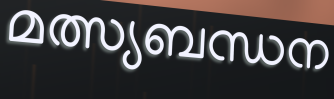
മത്സ്യബന്ധന